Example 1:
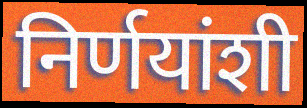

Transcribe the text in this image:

निर्णयांशी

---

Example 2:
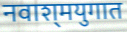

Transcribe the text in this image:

नवाश्मयुगात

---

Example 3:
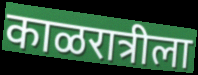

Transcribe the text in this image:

काळरात्रीला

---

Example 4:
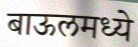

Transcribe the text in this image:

बाऊलमध्ये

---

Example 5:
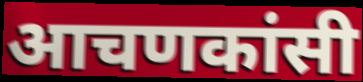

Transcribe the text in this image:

आचणकांसी